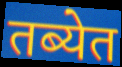
तब्येत